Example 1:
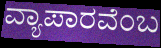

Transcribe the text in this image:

ವ್ಯಾಪಾರವೆಂಬ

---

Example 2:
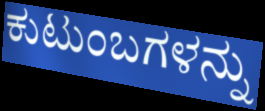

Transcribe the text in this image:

ಕುಟುಂಬಗಳನ್ನು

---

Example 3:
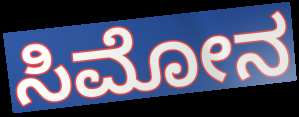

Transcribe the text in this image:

ಸಿಮೋನ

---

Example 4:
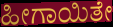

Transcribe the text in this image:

ಹೀಗಾಯಿತೇ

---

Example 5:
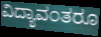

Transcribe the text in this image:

ವಿದ್ಯಾವಂತರೂ